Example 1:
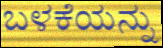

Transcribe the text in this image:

ಬಳಕೆಯನ್ನು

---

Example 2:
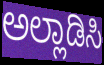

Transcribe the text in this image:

ಅಲ್ಲಾಡಿಸಿ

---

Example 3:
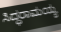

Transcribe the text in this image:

ಸಿದ್ಧರಾಮಯ್ಯ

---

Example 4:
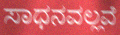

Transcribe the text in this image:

ಸಾಧನವಲ್ಲವೆ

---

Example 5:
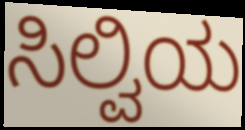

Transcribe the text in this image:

ಸಿಲ್ವಿಯ